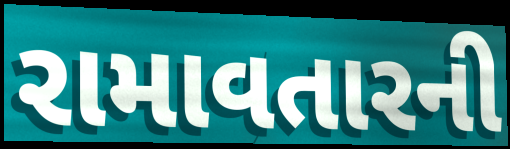
રામાવતારની